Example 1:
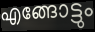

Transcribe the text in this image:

എങ്ങോട്ടും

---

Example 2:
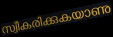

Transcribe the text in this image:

സ്വീകരിക്കുകയാണു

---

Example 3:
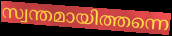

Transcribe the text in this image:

സ്വന്തമായിത്തന്നെ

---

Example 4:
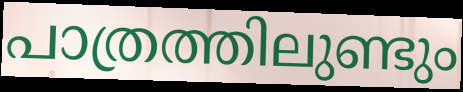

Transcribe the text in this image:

പാത്രത്തിലുണ്ടും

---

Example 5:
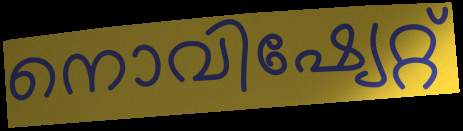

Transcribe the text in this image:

നൊവിഷ്യേറ്റ്